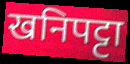
खनिपट्टा